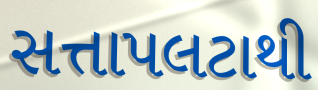
સત્તાપલટાથી